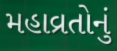
મહાવ્રતોનું